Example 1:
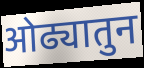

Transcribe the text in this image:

ओढ्यातुन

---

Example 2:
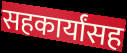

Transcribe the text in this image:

सहकार्यांसह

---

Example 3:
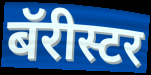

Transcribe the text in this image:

बॅरीस्टर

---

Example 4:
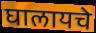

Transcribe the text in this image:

घालायचे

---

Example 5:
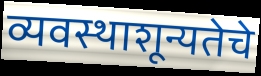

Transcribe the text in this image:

व्यवस्थाशून्यतेचे